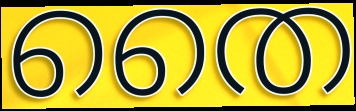
തൈ